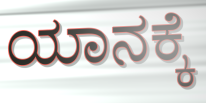
ಯಾನಕ್ಕೆ